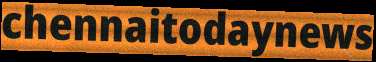
chennaitodaynews